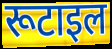
रूटाइल